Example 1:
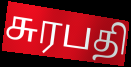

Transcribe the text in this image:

சுரபதி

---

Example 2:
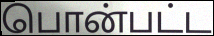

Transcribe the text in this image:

பொன்பட்ட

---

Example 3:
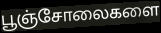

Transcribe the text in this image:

பூஞ்சோலைகளை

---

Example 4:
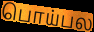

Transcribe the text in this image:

பொய்பல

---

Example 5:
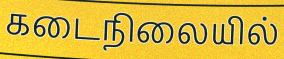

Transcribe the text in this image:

கடைநிலையில்